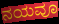
ನಯವೂ